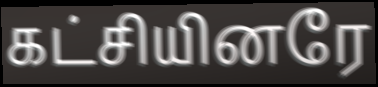
கட்சியினரே